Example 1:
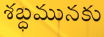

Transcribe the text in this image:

శబ్ధమునకు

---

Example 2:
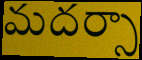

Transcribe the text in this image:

మదర్సా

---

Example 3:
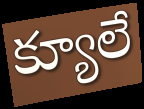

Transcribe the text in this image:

క్యూలే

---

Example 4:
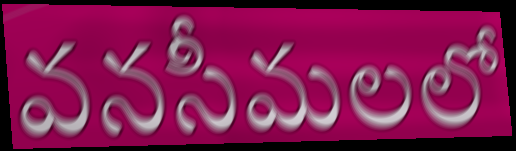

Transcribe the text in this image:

వనసీమలలో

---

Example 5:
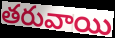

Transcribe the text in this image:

తరువాయి